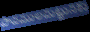
పాదములమట్టునకు